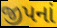
જીપનાં